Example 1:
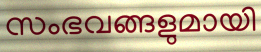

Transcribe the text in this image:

സംഭവങ്ങളുമായി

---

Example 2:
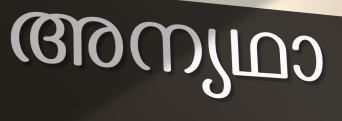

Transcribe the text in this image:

അന്യഥാ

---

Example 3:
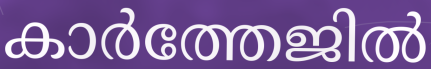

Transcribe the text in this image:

കാർത്തേജിൽ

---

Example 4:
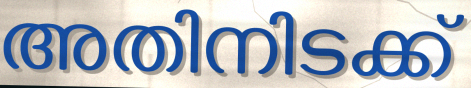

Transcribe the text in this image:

അതിനിടക്ക്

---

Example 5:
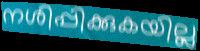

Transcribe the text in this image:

നശിപ്പിക്കുകയില്ല